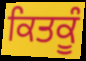
ਕਿਤਕੂੰ